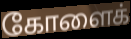
கோளைக்